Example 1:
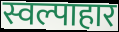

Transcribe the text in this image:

स्‍वल्‍पाहार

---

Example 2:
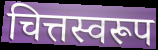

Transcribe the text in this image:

चित्तस्वरूप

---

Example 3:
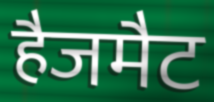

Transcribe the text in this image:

हैजमैट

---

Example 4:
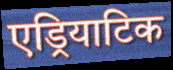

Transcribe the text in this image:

एड्रियाटिक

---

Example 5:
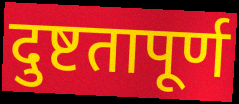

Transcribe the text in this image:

दुष्टतापूर्ण